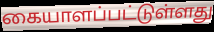
கையாளப்பட்டுள்ளது